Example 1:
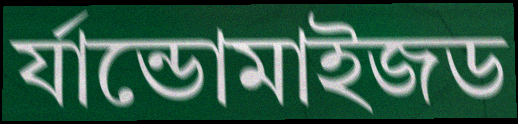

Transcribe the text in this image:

র্যান্ডোমাইজড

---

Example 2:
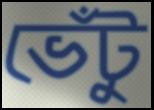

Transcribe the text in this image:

ভেঁটু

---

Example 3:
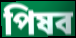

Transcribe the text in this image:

পিষব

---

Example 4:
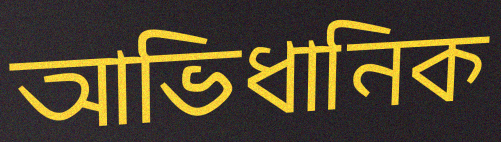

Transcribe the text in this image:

আভিধানিক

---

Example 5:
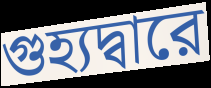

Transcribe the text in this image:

গুহ্যদ্বারে